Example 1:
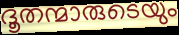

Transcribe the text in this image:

ദൂതന്മാരുടെയും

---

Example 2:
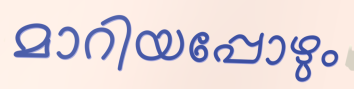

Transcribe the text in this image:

മാറിയപ്പോഴും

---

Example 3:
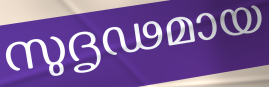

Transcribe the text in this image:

സുദൃഢമായ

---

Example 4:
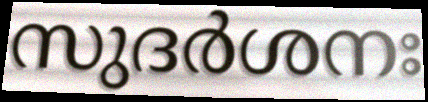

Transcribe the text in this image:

സുദർശനഃ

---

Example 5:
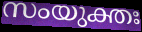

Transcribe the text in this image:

സംയുക്തഃ